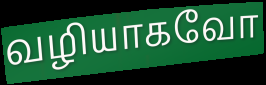
வழியாகவோ